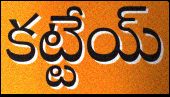
కట్టేయ్